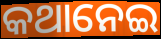
କଥାନେଇ